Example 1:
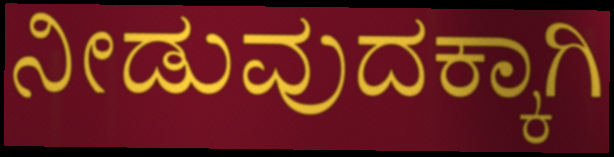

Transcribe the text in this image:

ನೀಡುವುದಕ್ಕಾಗಿ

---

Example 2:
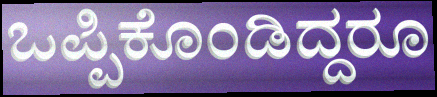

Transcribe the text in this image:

ಒಪ್ಪಿಕೊಂಡಿದ್ದರೂ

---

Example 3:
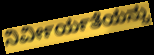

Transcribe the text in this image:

ನಿರ್ವೀರ್ಯತೆಯನ್ನು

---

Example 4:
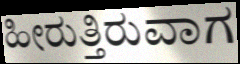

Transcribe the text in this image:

ಹೀರುತ್ತಿರುವಾಗ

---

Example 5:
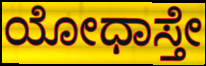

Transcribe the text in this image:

ಯೋಧಾಸ್ತೇ